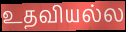
உதவியல்ல